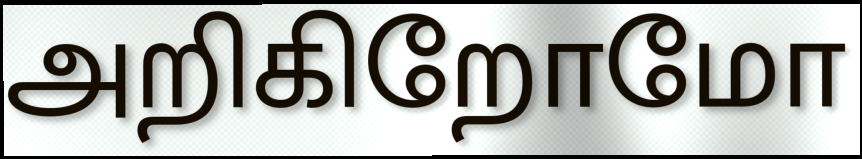
அறிகிறோமோ